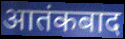
आतंकबाद